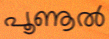
പൂണൂൽ